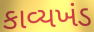
કાવ્યખંડ